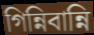
গিন্নিবান্নি